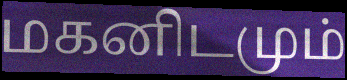
மகனிடமும்